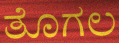
ತೊಗಲ